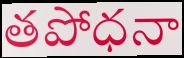
తపోధనా